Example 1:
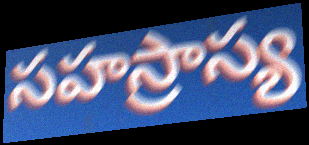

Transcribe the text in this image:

సహస్రాస్య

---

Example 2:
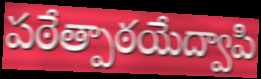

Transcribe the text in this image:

పఠేత్పాఠయేద్వాపి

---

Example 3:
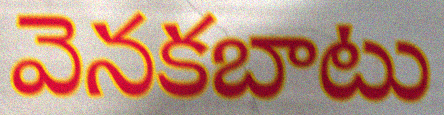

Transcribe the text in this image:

వెనకబాటు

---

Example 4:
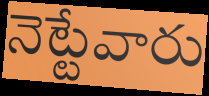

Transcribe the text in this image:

నెట్టేవారు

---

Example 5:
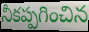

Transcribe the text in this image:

నీకప్పగించిన